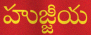
హుజ్జీయ